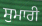
ਸੁਮਾਰੀ